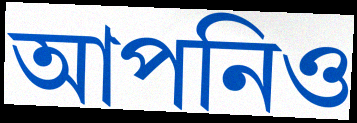
আপনিও